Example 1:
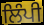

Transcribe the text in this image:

ਲਿੰਪੀ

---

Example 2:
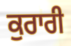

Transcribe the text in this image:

ਕੁਰਾਰੀ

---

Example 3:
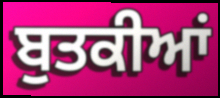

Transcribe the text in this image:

ਬੁਤਕੀਆਂ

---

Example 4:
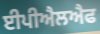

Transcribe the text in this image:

ਈਪੀਐਲਐਫ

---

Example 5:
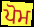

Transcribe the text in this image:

ਪੋਮ